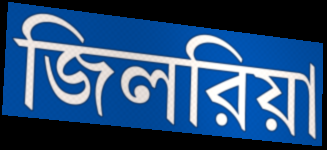
জিলরিয়া